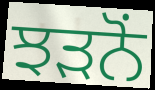
ਝੜਨੋਂ